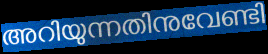
അറിയുന്നതിനുവേണ്ടി